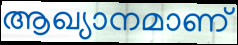
ആഖ്യാനമാണ്